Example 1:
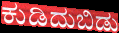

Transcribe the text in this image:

ಕುಡಿದುಬಿಡು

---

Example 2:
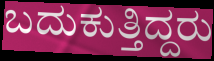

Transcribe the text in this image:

ಬದುಕುತ್ತಿದ್ದರು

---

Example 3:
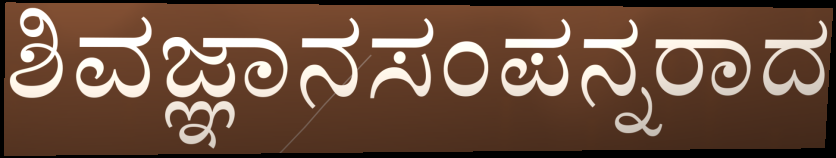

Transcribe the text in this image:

ಶಿವಜ್ಞಾನಸಂಪನ್ನರಾದ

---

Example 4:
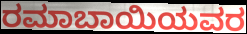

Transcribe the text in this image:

ರಮಾಬಾಯಿಯವರ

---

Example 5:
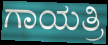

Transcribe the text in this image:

ಗಾಯತ್ರಿ